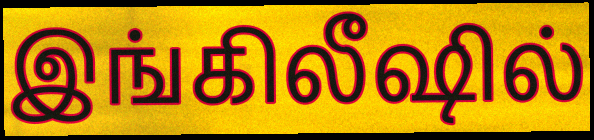
இங்கிலீஷில்